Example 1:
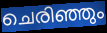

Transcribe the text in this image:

ചെരിഞ്ഞും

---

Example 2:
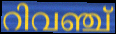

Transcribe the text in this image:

റിവഞ്ച്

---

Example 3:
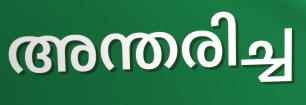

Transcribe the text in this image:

അന്തരിച്ച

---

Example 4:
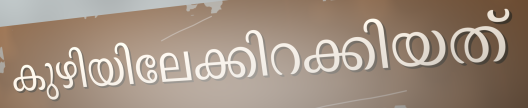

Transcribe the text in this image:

കുഴിയിലേക്കിറക്കിയത്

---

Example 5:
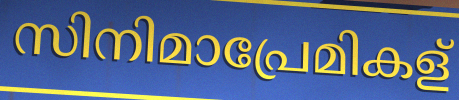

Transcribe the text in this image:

സിനിമാപ്രേമികള്